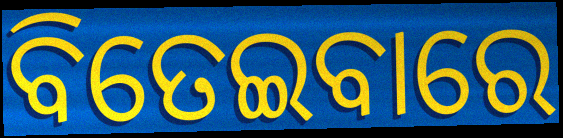
ବିତେଇବାରେ